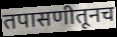
तपासणीतूनच